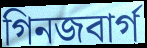
গিনজবার্গ